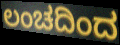
ಲಂಚದಿಂದ